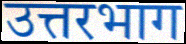
उत्तरभाग